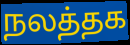
நலத்தக